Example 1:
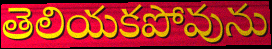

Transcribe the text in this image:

తెలియకపోవును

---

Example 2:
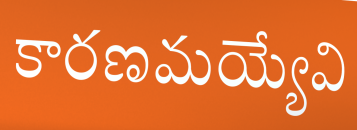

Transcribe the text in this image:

కారణమయ్యేవి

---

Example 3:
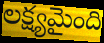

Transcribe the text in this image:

లక్ష్యమైంది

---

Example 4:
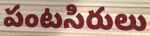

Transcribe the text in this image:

పంటసిరులు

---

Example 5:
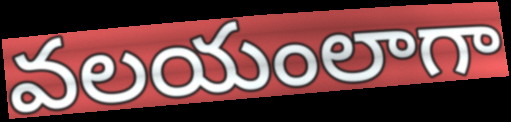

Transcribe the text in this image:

వలయంలాగా